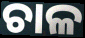
ଚାଳ